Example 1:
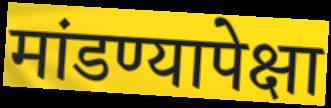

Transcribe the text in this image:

मांडण्यापेक्षा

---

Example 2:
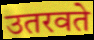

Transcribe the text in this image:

उतरवते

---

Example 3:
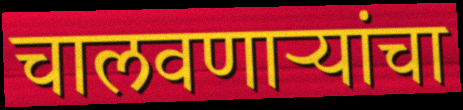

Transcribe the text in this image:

चालवणाऱ्यांचा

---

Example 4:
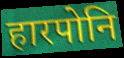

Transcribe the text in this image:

हारपोनि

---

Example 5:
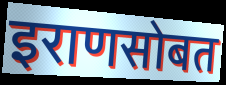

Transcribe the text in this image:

इराणसोबत